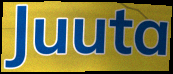
Juuta